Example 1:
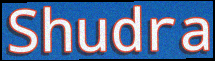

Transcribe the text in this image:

Shudra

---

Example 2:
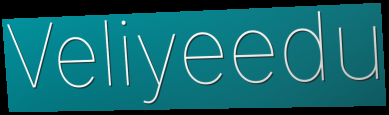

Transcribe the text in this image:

Veliyeedu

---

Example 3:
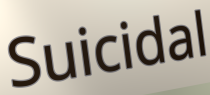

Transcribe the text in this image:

Suicidal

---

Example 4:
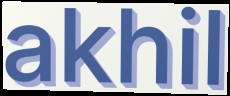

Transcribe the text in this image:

akhil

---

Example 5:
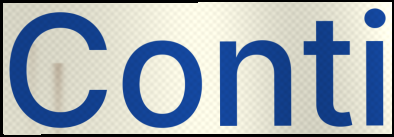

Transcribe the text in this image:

Conti